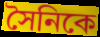
সৈনিকে